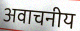
अवाचनीय